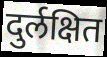
दुर्लक्षित